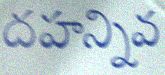
దహన్నివ